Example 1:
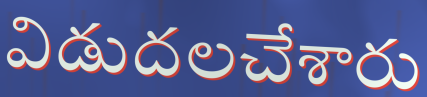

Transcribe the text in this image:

విడుదలచేశారు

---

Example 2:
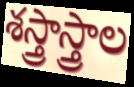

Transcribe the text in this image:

శస్త్రాస్త్రాల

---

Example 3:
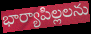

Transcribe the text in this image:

భార్యాపిల్లలను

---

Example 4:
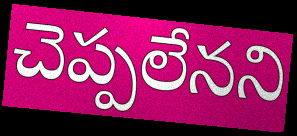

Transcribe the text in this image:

చెప్పలేనని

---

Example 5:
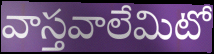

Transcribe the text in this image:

వాస్తవాలేమిటో